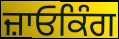
ਜ਼ਾਓਕਿੰਗ